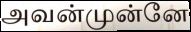
அவன்முன்னே